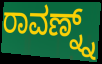
ರಾವಣ್ನ್ನ್